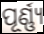
ପୂର୍ଣ୍ଣ୍ୟ